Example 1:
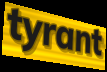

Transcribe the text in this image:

tyrant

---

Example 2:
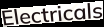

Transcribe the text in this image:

Electricals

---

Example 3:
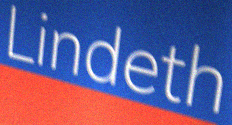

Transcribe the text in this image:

Lindeth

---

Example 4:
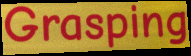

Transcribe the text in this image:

Grasping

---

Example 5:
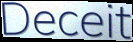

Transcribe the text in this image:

Deceit